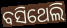
ବସିଥେଲି